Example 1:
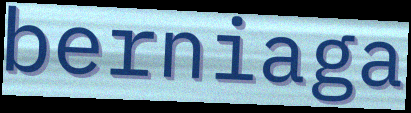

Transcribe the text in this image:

berniaga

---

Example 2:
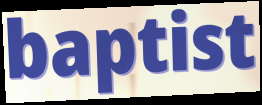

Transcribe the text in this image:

baptist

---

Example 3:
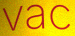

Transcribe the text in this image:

vac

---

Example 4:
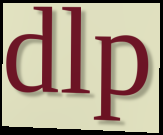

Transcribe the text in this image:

dlp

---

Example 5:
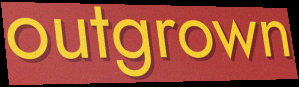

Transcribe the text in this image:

outgrown